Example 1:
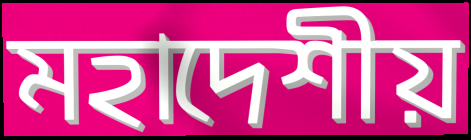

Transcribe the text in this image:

মহাদেশীয়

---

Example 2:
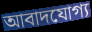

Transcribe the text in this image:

আবাদযোগ্য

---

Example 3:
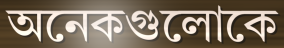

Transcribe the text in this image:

অনেকগুলোকে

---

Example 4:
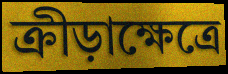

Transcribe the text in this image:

ক্রীড়াক্ষেত্রে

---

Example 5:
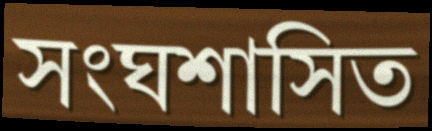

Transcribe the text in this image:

সংঘশাসিত